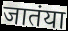
जातंया